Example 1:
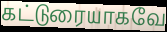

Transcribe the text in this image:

கட்டுரையாகவே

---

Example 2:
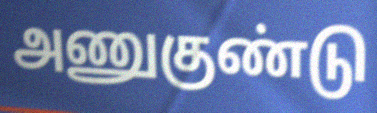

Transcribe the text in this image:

அணுகுண்டு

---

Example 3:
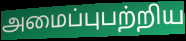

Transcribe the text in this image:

அமைப்புபற்றிய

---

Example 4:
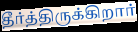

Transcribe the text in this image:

தீர்த்திருக்கிறார்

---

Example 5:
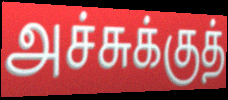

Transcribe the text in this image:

அச்சுக்குத்